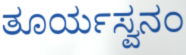
ತೂರ್ಯಸ್ವನಂ